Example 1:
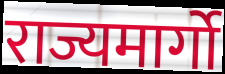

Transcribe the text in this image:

राज्यमार्गो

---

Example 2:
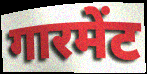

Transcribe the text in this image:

गारमेंट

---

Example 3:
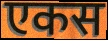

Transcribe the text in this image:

एकस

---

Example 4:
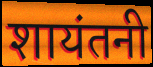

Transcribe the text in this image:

शायंतनी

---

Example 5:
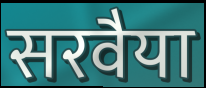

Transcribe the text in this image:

सरवैया